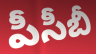
పీసీబీ